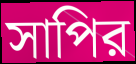
সাপির